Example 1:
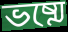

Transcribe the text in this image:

ভষ্মে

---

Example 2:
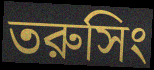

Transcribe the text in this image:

তরুসিং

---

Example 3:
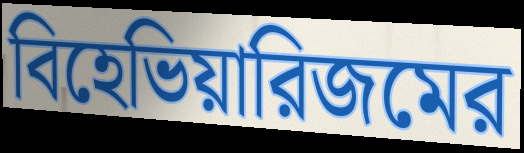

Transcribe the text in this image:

বিহেভিয়ারিজমের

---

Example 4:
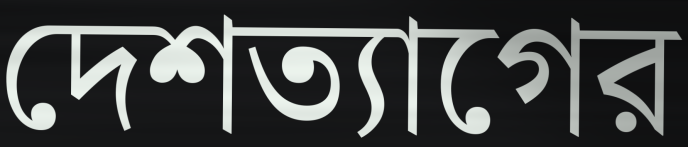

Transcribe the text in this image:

দেশত্যাগের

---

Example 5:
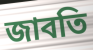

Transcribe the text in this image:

জাবতি